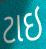
ટાઇ